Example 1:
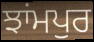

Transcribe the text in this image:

ਝਾਂਮਪੁਰ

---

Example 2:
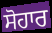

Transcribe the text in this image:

ਸੋਹਾਰ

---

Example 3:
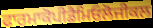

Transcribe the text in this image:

ਫਾਰਮਾਕੋਪੀਡੈਮਿਓਲੋਜੀਕਲ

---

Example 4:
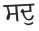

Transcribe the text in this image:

ਸਦੁ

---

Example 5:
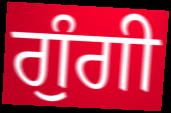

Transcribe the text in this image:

ਗੁੰਗੀ